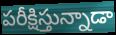
పరీక్షిస్తున్నాడా